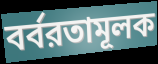
বর্বরতামূলক